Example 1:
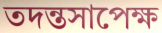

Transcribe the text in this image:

তদন্তসাপেক্ষ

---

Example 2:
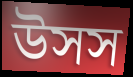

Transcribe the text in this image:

উসস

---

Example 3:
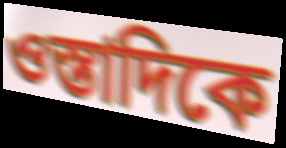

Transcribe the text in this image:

ওস্তাদিকে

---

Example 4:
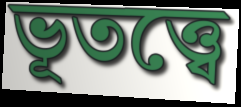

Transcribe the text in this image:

ভূতত্ত্বে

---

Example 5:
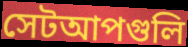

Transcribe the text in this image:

সেটআপগুলি